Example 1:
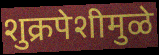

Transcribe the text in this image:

शुक्रपेशीमुळे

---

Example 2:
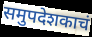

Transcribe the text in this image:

समुपदेशकाचं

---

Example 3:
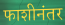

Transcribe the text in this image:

फाशीनंतर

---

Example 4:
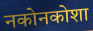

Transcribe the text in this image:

नकोनकोशा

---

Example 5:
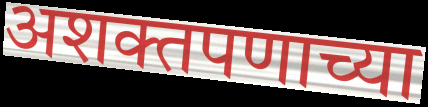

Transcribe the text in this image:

अशक्तपणाच्या